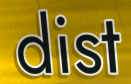
dist